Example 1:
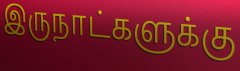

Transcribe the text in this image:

இருநாட்களுக்கு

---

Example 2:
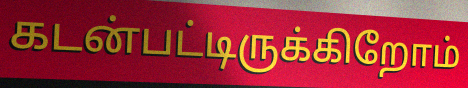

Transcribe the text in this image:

கடன்பட்டிருக்கிறோம்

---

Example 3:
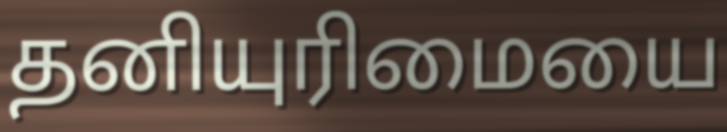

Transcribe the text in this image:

தனியுரிமையை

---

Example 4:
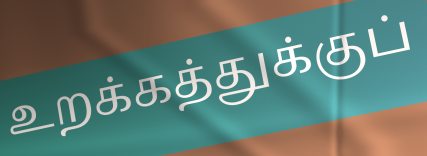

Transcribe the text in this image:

உறக்கத்துக்குப்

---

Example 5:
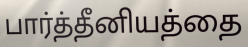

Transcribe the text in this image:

பார்த்தீனியத்தை